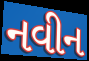
નવીન